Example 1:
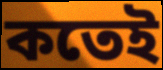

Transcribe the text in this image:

কতেই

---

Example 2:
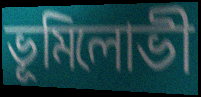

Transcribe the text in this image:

ভূমিলোভী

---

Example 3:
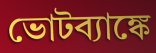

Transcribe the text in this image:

ভোটব্যাঙ্কে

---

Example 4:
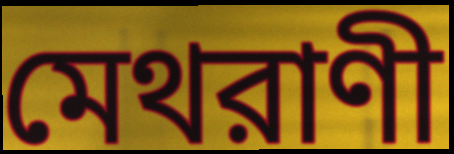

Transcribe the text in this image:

মেথরাণী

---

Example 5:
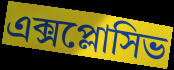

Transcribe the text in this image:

এক্সপ্লোসিভ